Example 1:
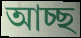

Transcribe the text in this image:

আচ্ছ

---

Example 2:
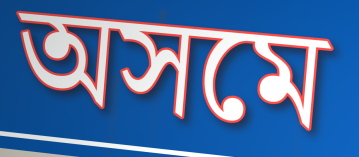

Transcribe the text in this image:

অসমে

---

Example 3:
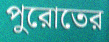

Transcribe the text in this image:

পুরোতের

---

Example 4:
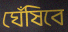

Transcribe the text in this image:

ঘেঁষিবে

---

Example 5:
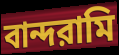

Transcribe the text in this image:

বান্দরামি